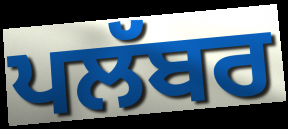
ਪਲੱਬਰ